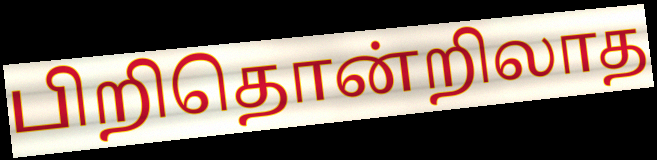
பிறிதொன்றிலாத